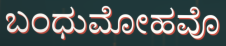
ಬಂಧುಮೋಹವೊ